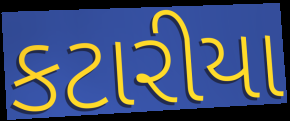
કટારીયા